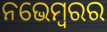
ନଭେମ୍ବରର